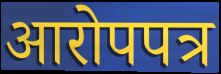
आरोपपत्र